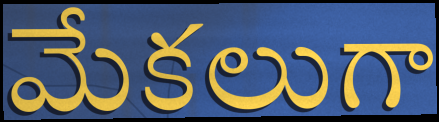
మేకలుగా